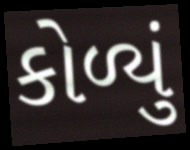
કોળ્યું